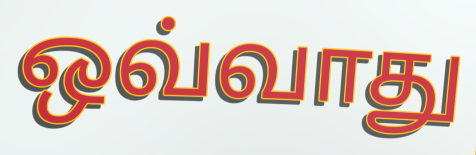
ஒவ்வாது